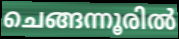
ചെങ്ങന്നൂരിൽ